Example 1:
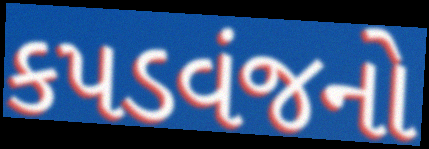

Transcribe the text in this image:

કપડવંજનો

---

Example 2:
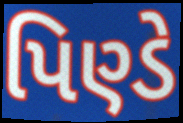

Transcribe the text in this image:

પિણ્ડે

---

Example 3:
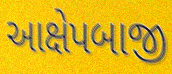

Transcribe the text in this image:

આક્ષેપબાજી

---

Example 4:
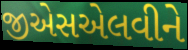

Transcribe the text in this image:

જીએસએલવીને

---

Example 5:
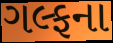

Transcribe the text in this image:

ગલ્ફના